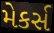
મેકર્સ